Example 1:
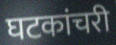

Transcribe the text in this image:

घटकांचरी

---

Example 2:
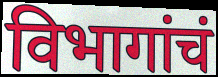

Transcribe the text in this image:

विभागांचं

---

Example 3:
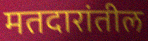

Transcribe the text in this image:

मतदारांतील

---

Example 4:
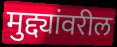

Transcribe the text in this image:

मुद्द्यांवरील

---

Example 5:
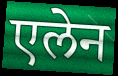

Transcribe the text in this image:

एलेन